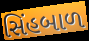
સિંહબાળ